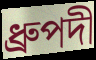
ধ্ৰুপদী